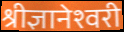
श्रीज्ञानेश्वरी